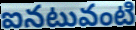
ఐనటువంటి